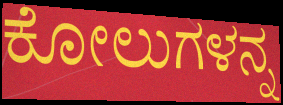
ಕೋಲುಗಳನ್ನ